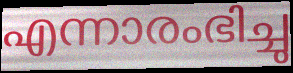
എന്നാരംഭിച്ചു